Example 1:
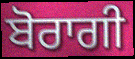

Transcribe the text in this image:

ਬੋਰਾਗੀ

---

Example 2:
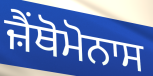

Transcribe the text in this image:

ਜ਼ੈਂਥੋਮੋਨਾਸ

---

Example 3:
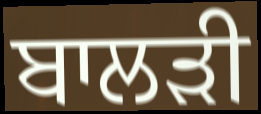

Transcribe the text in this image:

ਬਾਲੜੀ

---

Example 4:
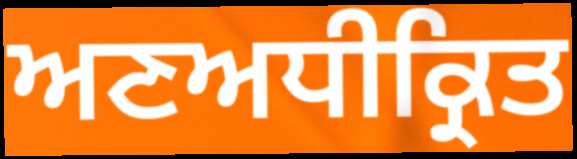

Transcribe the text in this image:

ਅਣਅਧੀਕ੍ਰਿਤ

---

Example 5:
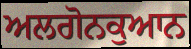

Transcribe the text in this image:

ਅਲਗੋਨਕੁਆਨ